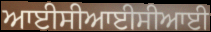
ਆਈਸੀਆਈਸੀਆਈ